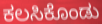
ಕಲಸಿಕೊಂಡು